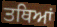
ਤਥਿਆਂ